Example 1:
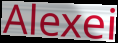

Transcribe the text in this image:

Alexei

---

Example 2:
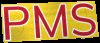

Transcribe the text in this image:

PMS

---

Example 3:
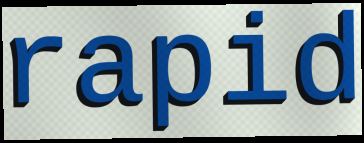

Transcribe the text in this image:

rapid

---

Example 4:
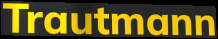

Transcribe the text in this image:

Trautmann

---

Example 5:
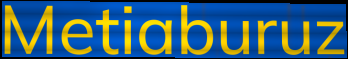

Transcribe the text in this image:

Metiaburuz